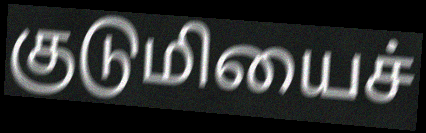
குடுமியைச்